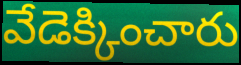
వేడెక్కించారు